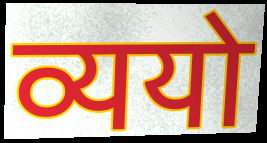
व्ययो